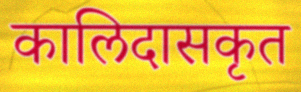
कालिदासकृत